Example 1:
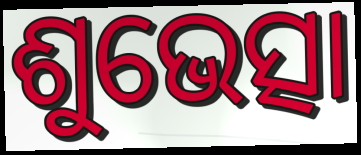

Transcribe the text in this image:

ଶୁଭେତ୍ସା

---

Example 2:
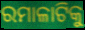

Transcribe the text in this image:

ରମାଳାଟିକୁ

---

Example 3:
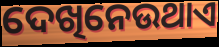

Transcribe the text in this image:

ଦେଖିନେଉଥାଏ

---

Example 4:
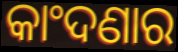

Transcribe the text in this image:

କାଂଦଣାର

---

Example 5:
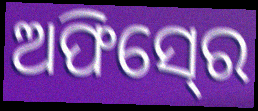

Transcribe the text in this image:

ଅଫିସ୍‍ରେ